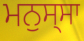
ਮਨੁਸ੍ਸਾ